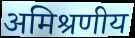
अमिश्रणीय